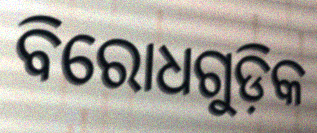
ବିରୋଧଗୁଡ଼ିକ